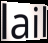
lail